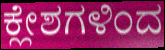
ಕ್ಲೇಶಗಳಿಂದ